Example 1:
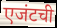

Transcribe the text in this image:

एजंटची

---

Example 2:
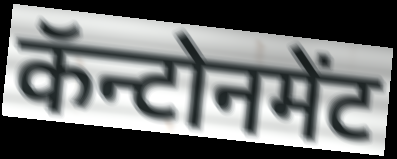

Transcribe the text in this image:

कॅन्टोनमेंट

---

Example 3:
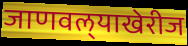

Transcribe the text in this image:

जाणवल्याखेरीज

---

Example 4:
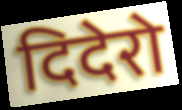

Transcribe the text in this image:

दिदेरो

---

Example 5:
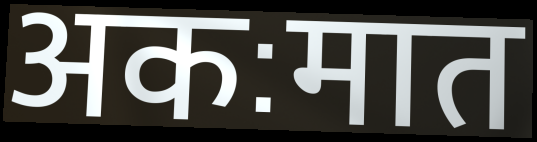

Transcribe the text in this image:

अकःमात